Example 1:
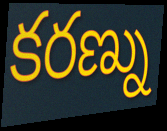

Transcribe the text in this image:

కరణ్ను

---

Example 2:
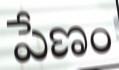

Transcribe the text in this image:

పేణం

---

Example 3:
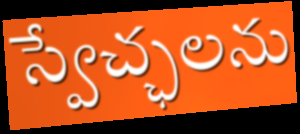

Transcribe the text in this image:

స్వేచ్ఛలను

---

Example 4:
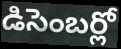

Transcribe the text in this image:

డిసెంబర్లో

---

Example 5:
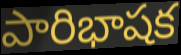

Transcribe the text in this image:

పారిభాషక